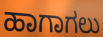
ಹಾಗಾಗಲು